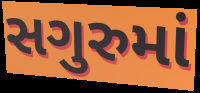
સગુરુમાં